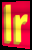
lr